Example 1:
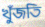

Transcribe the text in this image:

খুঁজতি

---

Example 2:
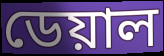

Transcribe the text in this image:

ডেয়াল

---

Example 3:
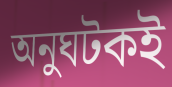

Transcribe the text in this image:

অনুঘটকই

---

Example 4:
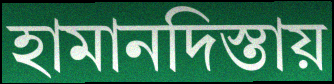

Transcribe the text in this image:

হামানদিস্তায়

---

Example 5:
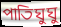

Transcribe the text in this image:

পাতিঘুঘু